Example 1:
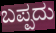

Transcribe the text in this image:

ಬಪ್ಪದು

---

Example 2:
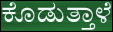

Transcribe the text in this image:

ಕೊಡುತ್ತಾಳೆ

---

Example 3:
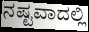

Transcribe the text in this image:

ನಷ್ಟವಾದಲ್ಲಿ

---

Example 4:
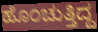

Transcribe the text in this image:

ಹೊಂಚುತ್ತಿದ್ದ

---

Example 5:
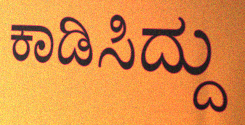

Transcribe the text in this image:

ಕಾಡಿಸಿದ್ದು